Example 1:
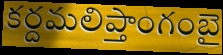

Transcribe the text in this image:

కర్దమలిప్తాంగంబై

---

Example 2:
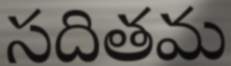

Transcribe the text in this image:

సదితమ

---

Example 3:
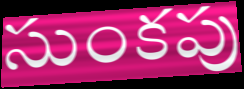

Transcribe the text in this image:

సుంకపు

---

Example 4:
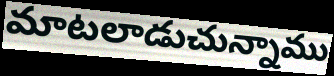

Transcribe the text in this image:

మాటలాడుచున్నాము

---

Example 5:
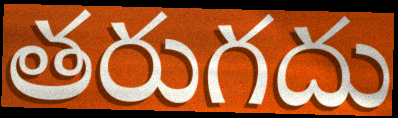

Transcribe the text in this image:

తరుగదు